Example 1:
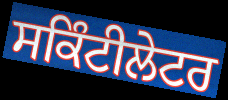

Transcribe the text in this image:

ਸਕਿੰਟੀਲੇਟਰ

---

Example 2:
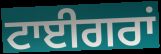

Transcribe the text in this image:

ਟਾਈਗਰਾਂ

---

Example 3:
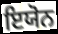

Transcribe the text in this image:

ਇਯੋਨ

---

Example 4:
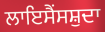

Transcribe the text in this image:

ਲਾਇਸੈਂਸਸ਼ੁਦਾ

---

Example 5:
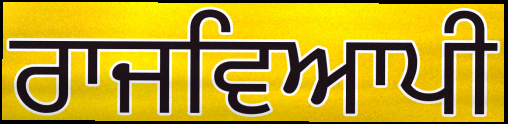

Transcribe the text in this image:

ਰਾਜਵਿਆਪੀ